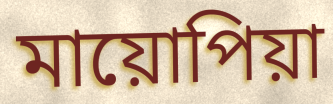
মায়োপিয়া